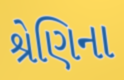
શ્રેણિના